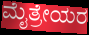
ಮೈತ್ರೇಯರ